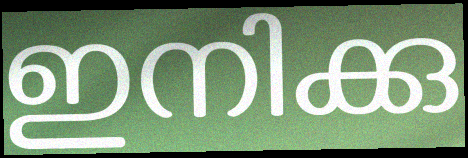
ഇനിക്കു